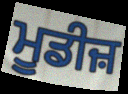
ਮੂਡੀਜ਼